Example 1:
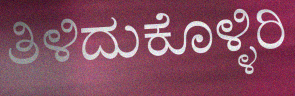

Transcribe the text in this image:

ತಿಳಿದುಕೊಳ್ಳಿರಿ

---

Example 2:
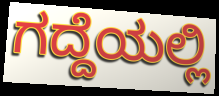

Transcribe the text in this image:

ಗದ್ದೆಯಲ್ಲಿ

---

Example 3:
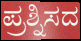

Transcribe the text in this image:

ಪ್ರಶ್ನಿಸದ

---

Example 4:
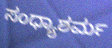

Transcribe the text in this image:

ಸಂಧ್ಯಾಶರ್ಮ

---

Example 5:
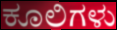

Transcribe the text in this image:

ಕೂಲಿಗಳು